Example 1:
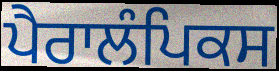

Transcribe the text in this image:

ਪੈਰਾਲੰਪਿਕਸ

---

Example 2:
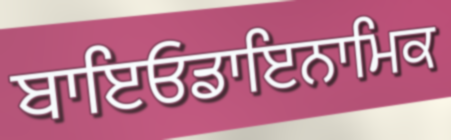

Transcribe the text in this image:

ਬਾਇਓਡਾਇਨਾਮਿਕ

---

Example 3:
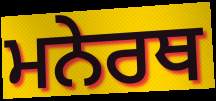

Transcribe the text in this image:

ਮਨੇਰਥ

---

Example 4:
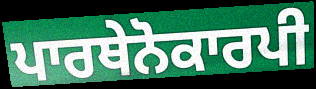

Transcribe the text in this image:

ਪਾਰਥੇਨੋਕਾਰਪੀ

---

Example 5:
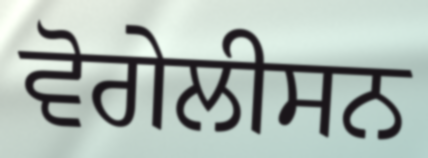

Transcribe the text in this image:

ਵੋਗੇਲੀਸਨ